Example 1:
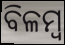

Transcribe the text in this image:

ବିଳମ୍ଵ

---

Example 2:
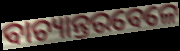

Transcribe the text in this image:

ବାଚ୍ୟାନ୍ତରବେଳେ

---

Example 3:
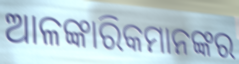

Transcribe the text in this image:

ଆଳଙ୍କାରିକମାନଙ୍କର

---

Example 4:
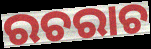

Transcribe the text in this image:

ରଚରାଚ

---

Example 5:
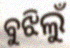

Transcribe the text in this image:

ବୁଝିଲୁଁ